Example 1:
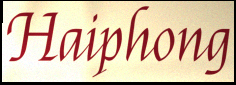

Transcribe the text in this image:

Haiphong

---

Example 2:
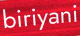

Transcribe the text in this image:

biriyani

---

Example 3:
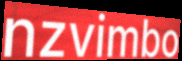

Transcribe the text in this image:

nzvimbo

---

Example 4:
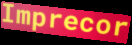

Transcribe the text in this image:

Imprecor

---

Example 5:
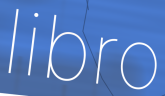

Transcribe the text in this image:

libro